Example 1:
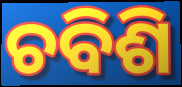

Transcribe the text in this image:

ଚବିଶି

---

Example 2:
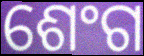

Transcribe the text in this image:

ଶେଂଗ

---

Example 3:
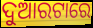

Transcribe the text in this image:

ଦୁଆରଟାରେ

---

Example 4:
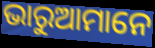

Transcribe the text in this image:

ଭାରୁଆମାନେ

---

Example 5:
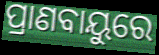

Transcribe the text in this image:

ପ୍ରାଣବାୟୁରେ